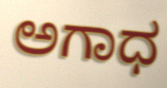
ಅಗಾಧ